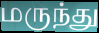
மருந்து